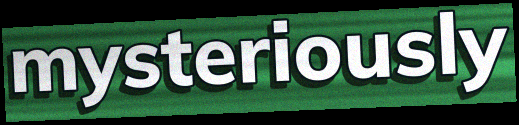
mysteriously